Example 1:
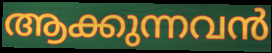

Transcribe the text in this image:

ആക്കുന്നവൻ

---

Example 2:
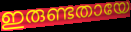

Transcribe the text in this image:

ഇരുണ്ടതായേ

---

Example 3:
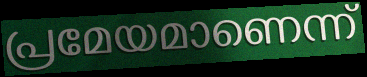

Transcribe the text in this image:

പ്രമേയമാണെന്ന്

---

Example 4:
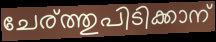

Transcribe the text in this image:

ചേര്ത്തുപിടിക്കാന്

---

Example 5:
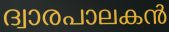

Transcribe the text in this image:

ദ്വാരപാലകൻ